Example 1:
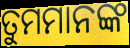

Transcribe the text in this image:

ତୁମମାନଙ୍କ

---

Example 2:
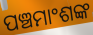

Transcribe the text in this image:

ପଞ୍ଚମାଂଶଙ୍କ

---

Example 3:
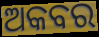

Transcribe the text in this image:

ଅକବର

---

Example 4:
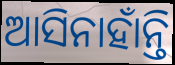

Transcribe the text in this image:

ଆସିନାହାଁନ୍ତି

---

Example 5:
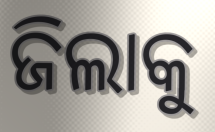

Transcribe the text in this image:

ଜିଲାକୁ